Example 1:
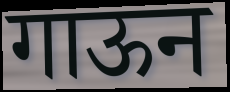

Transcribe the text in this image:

गाऊन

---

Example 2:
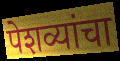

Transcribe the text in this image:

पेशव्यांचा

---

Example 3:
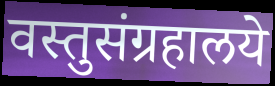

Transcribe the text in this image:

वस्तुसंग्रहालये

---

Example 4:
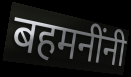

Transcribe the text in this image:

बहमनींनी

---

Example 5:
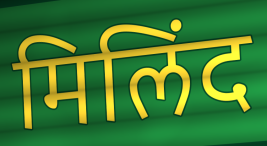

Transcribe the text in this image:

मिलिंद